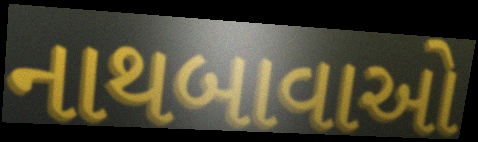
નાથબાવાઓ